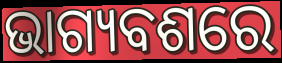
ଭାଗ୍ୟବଶରେ